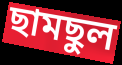
ছামছুল